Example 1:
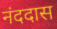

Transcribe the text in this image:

नंददास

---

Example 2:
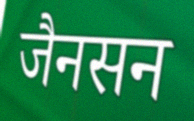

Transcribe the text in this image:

जैनसन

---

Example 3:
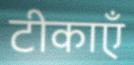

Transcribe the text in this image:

टीकाएँ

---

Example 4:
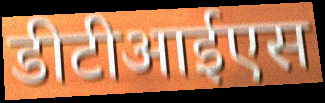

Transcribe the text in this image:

डीटीआईएस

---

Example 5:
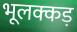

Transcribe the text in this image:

भूलक्कड़